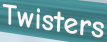
Twisters